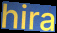
hira